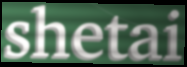
shetai